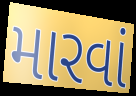
મારવાં